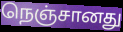
நெஞ்சானது